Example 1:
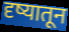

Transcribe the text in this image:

दृष्यातून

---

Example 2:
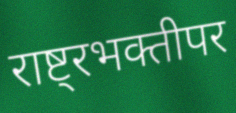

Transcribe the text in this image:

राष्ट्रभक्तीपर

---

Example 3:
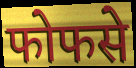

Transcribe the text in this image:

फोफसे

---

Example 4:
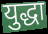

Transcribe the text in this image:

युद्धा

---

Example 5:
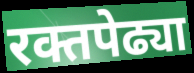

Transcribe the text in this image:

रक्तपेढ्या